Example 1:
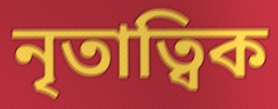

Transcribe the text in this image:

নৃতাত্বিক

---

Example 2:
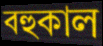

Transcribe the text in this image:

বহুকাল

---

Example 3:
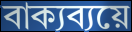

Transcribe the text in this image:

বাক্যব্যয়ে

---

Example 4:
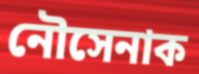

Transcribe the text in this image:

নৌসেনাক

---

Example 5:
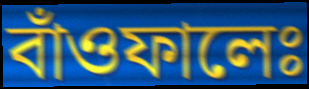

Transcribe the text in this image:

বাঁওফালেঃ